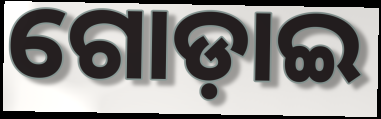
ଗୋଡ଼ାଇ